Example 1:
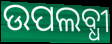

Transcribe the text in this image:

ଉପଲବ୍ଧୀ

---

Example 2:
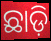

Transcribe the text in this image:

ଛାଡ଼ି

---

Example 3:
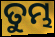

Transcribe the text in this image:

ତୁମ୍ଭ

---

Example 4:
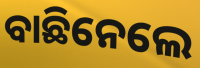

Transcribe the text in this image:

ବାଛିନେଲେ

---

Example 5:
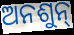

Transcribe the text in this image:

ଅନଶୁନ୍